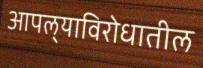
आपल्याविरोधातील